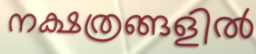
നക്ഷത്രങ്ങളിൽ